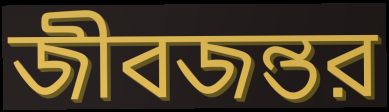
জীবজন্তর